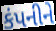
કંપનીને